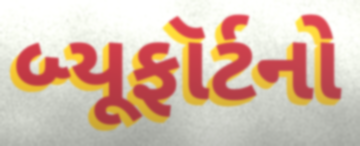
બ્યૂફૉર્ટનો